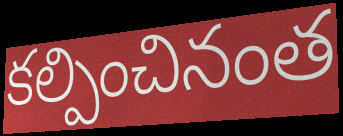
కల్పించినంత